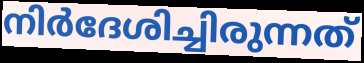
നിർദേശിച്ചിരുന്നത്